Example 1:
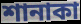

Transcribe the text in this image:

শানাকা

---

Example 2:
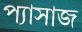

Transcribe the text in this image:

প্যাসাজ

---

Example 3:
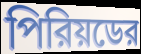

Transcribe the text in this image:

পিরিয়ডের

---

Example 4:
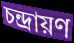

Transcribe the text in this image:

চন্দ্রায়ণ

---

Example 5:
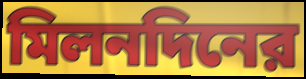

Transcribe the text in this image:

মিলনদিনের